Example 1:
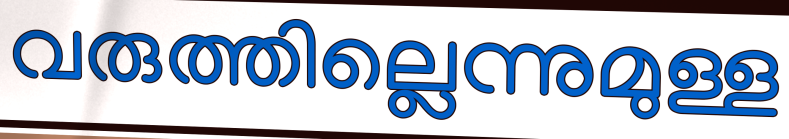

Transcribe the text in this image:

വരുത്തില്ലെന്നുമുള്ള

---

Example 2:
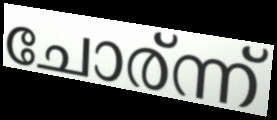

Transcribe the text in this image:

ചോര്ന്ന്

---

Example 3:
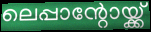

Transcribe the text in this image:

ലെപ്പാന്റോയ്ക്ക്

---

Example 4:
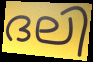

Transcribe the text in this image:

ദലി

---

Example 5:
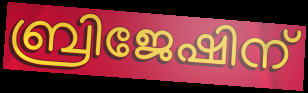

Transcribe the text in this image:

ബ്രിജേഷിന്